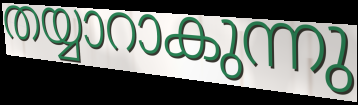
തയ്യാറാകുന്നു